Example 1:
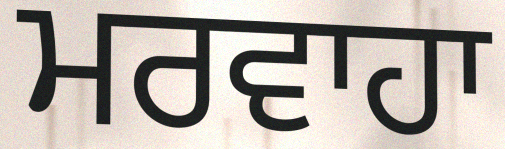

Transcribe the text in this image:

ਮਰਵਾਹਾ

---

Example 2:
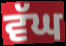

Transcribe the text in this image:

ਵੱਘ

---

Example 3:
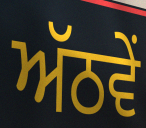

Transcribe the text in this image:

ਅੱਠਵੇਂ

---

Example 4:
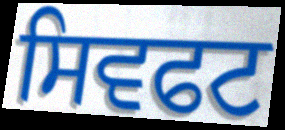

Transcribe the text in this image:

ਸਿਵਫਟ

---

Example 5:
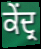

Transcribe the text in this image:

ਕੇਂਦ੍ਰ